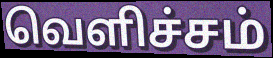
வெளிச்சம்